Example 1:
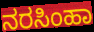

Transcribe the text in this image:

ನರಸಿಂಹಾ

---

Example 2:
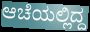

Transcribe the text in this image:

ಆಚೆಯಲ್ಲಿದ್ದ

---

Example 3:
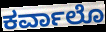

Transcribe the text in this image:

ಕರ್ವಾಲೊ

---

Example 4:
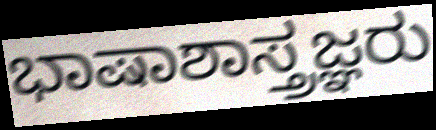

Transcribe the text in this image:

ಭಾಷಾಶಾಸ್ತ್ರಜ್ಞರು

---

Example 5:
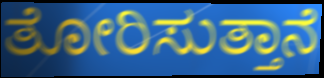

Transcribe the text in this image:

ತೋರಿಸುತ್ತಾನೆ